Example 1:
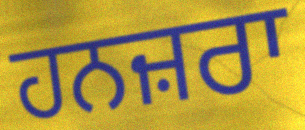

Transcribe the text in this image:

ਹਨਜ਼ਰਾ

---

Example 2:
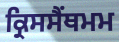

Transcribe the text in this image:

ਕ੍ਰਿਸਸੈਂਥਮਮ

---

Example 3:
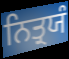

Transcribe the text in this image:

ਨਿਤ੍ਰਯੰ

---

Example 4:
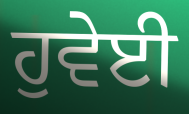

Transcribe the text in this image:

ਹੁਵੇਈ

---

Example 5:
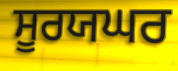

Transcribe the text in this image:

ਸੂਰਯਘਰ